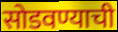
सोडवण्याची